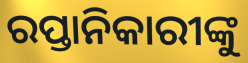
ରପ୍ତାନିକାରୀଙ୍କୁ